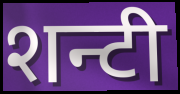
शन्टी